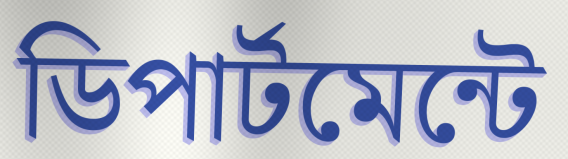
ডিপার্টমেন্টে